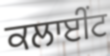
ਕਲਾਈਂਟ